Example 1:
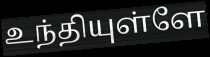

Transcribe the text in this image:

உந்தியுள்ளே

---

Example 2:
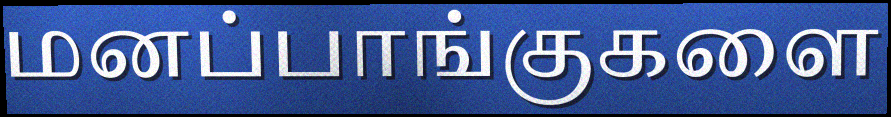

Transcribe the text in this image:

மனப்பாங்குகளை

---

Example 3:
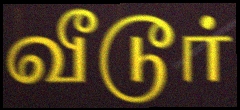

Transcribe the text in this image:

வீடூர்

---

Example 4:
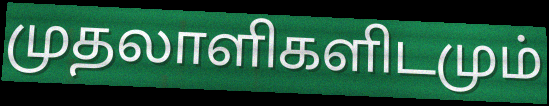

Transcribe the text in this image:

முதலாளிகளிடமும்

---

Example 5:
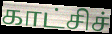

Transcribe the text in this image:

காட்சிச்